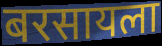
बरसायला